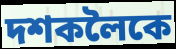
দশকলৈকে